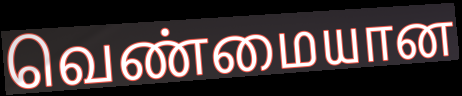
வெண்மையான